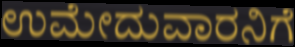
ಉಮೇದುವಾರನಿಗೆ